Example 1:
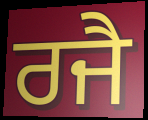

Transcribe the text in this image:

ਰਜੈ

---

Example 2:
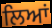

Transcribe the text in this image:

ਲਿਆਂ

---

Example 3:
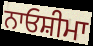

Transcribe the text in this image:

ਨਾਓਸ਼ੀਮਾ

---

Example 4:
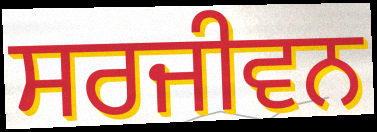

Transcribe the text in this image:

ਸਰਜੀਵਨ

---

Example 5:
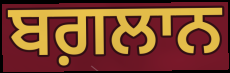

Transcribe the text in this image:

ਬਗ਼ਲਾਨ